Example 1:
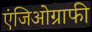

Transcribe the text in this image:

एंजिओग्राफी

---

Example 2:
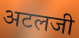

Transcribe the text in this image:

अटलजी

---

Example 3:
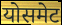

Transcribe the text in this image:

योसमेट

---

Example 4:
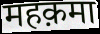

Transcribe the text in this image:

महक़मा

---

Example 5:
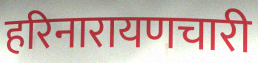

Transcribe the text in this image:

हरिनारायणचारी